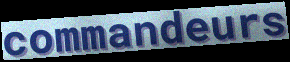
commandeurs